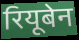
रियूबेन